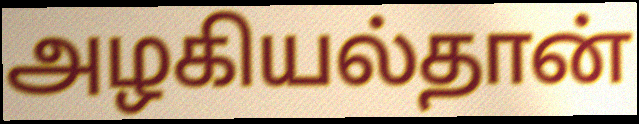
அழகியல்தான்